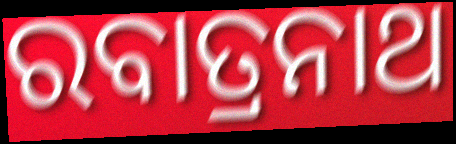
ରବାତ୍ରନାଥ